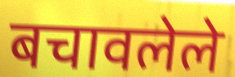
बचावलेले